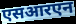
एसआरएन